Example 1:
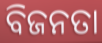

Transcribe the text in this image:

ବିଜନତା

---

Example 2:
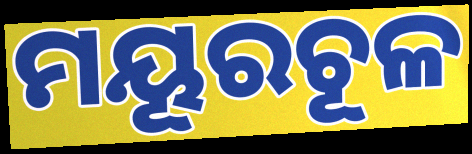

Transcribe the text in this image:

ମୟୂରଚୂଳ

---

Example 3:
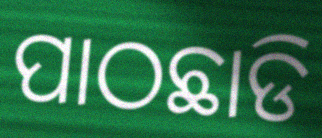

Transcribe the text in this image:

ପାଠଛାଡି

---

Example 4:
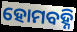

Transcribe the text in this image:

ହୋମବହ୍ନି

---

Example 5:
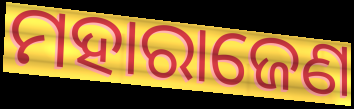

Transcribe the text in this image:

ମହାରାଜେଣ